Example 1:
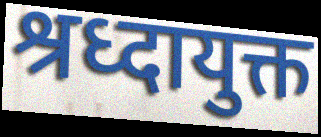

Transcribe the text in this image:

श्रध्दायुक्त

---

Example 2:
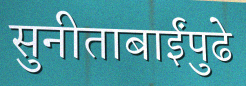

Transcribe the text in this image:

सुनीताबाईंपुढे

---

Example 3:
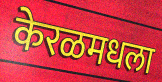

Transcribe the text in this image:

केरळमधला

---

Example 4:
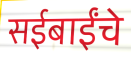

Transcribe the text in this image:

सईबाईंचे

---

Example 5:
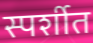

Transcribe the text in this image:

स्पर्शीत